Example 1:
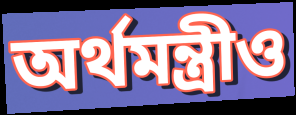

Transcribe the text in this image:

অর্থমন্ত্রীও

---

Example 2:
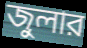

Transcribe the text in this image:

জুলার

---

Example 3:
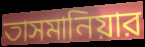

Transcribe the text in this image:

তাসমানিয়ার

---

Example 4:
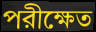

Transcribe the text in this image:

পরীক্ষেত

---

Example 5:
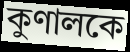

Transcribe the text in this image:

কুণালকে